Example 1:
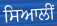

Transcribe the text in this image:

ਸਿਆਲੀਂ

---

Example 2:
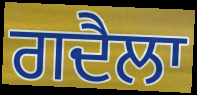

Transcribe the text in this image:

ਗਦੈਲਾ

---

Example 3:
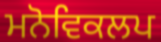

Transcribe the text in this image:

ਮਨੋਵਿਕਲਪ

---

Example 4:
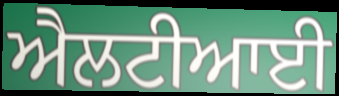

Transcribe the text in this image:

ਐਲਟੀਆਈ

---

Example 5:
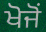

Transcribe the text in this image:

ਖੋਜੋਂ